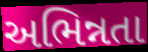
અભિન્નતા